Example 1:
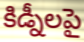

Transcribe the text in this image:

కిడ్నీలపై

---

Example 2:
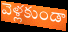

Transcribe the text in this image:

వెళ్లకుండా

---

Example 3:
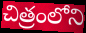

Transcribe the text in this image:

చిత్రంలోని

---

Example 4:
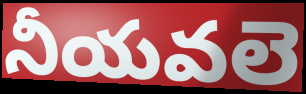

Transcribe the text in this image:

నీయవలె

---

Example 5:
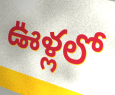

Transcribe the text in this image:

ఊళ్లలో